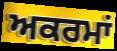
ਅਕਰਮਾਂ